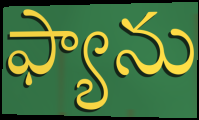
ఫ్యాను